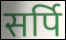
सर्पि